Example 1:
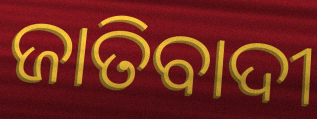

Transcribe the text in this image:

ଜାତିବାଦୀ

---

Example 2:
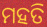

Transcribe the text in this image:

ମହତି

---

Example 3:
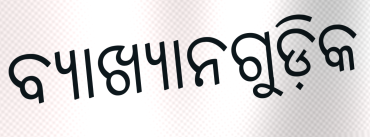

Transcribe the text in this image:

ବ୍ୟାଖ୍ୟାନଗୁଡ଼ିକ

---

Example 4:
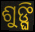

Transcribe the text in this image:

ଶୁଙ୍ଘି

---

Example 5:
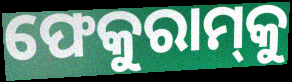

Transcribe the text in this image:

ଫେକୁରାମ୍‌କୁ